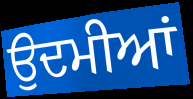
ਉਦਮੀਆਂ